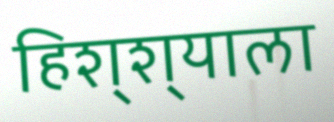
हिश्श्याला